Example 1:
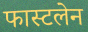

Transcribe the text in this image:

फास्टलेन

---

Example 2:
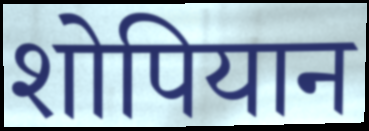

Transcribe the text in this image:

शोपियान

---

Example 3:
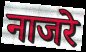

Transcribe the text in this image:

नाजरे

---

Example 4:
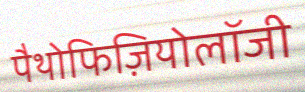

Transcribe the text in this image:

पैथोफिज़ियोलॉजी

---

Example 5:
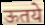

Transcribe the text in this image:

ऊतये